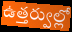
ఉత్తర్వుల్లో